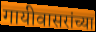
गायीवासरांच्या